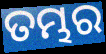
ତମ୍ଭର